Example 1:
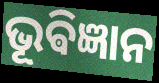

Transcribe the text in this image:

ଭୂଵିଜ୍ଞାନ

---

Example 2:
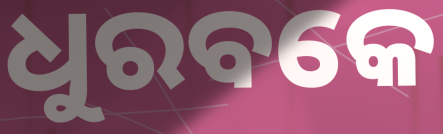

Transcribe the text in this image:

ଧୁରବକେ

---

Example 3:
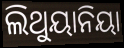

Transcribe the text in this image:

ଲିଥୁୟାନିୟା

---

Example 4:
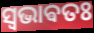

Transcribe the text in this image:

ସ୍ଵଭାଵତଃ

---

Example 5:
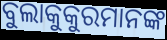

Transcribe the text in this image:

ବୁଲାକୁକୁରମାନଙ୍କ